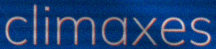
climaxes